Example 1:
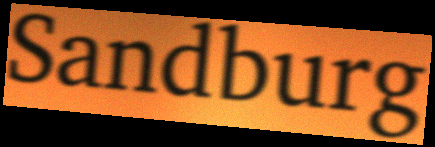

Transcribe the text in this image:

Sandburg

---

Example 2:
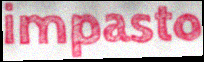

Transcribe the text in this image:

impasto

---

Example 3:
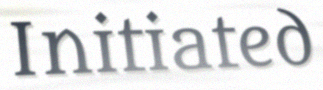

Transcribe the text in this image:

Initiated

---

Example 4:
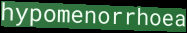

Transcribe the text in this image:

hypomenorrhoea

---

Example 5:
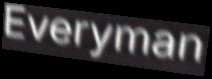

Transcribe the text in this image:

Everyman